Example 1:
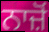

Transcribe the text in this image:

ਨਾਜ਼ੋਂ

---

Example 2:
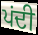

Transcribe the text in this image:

ਪਂਦੀ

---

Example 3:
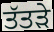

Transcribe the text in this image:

ਤੱਤੜੇ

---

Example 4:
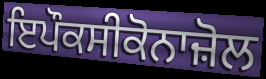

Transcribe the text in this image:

ਇਪੌਕਸੀਕੋਨਾਜ਼ੋਲ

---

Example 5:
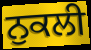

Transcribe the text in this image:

ਨੁਕਲੀ